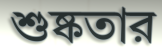
শুষ্কতার